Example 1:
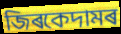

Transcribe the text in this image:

জিৰকেদামৰ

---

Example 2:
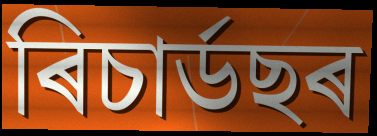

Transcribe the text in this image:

ৰিচাৰ্ডছৰ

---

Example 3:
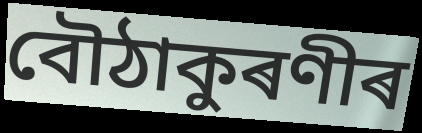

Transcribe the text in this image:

বৌঠাকুৰণীৰ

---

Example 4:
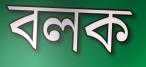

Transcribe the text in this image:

বলক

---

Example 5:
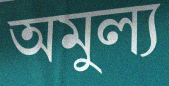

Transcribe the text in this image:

অমুল্য